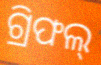
ଗ୍ରିଫଲ୍